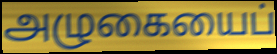
அழுகையைப்